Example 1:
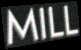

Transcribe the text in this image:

MILL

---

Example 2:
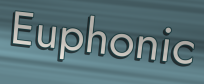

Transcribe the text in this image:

Euphonic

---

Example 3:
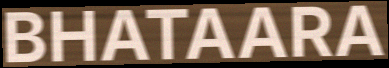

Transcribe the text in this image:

BHATAARA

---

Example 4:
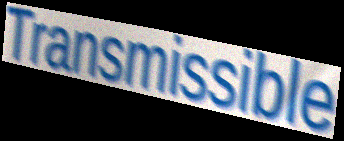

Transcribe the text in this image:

Transmissible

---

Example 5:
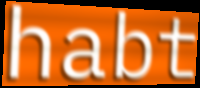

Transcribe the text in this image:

habt